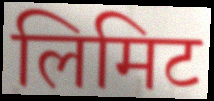
लिमिट